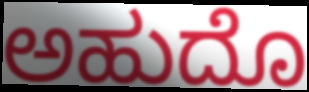
ಅಹುದೊ